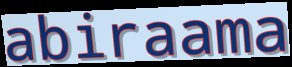
abiraama